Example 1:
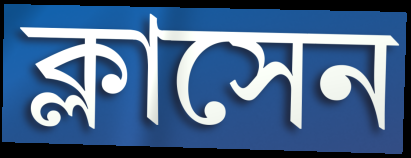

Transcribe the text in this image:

ক্লাসেন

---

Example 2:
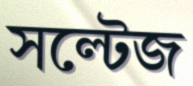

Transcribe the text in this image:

সল্টেজ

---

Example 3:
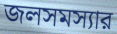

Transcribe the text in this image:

জলসমস্যার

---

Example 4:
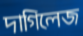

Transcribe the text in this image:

দাগিলেজ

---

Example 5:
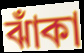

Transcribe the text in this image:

ঝাঁকা